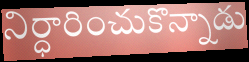
నిర్ధారించుకొన్నాడు